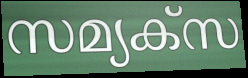
സമ്യക്സ